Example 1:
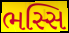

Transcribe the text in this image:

ભસ્સિ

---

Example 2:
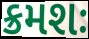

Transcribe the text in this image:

ક્રમશઃ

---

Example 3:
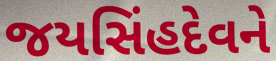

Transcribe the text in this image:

જયસિંહદેવને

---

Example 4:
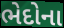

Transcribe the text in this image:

ભેદોના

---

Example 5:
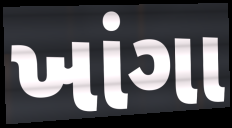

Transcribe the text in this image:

ખાંગા